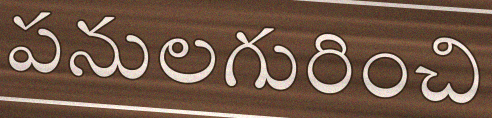
పనులగురించి